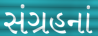
સંગ્રહનાં